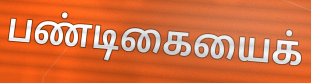
பண்டிகையைக்